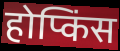
होप्किंस